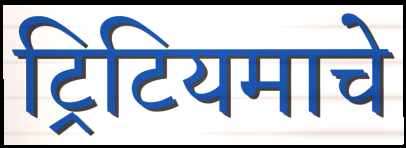
ट्रिटियमाचे